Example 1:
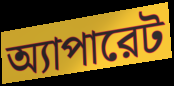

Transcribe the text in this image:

অ্যাপারেট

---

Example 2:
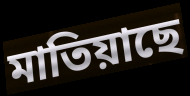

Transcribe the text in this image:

মাতিয়াছে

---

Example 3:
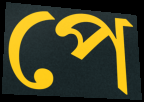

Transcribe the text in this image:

পে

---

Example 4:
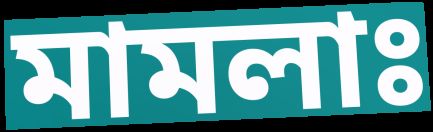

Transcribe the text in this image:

মামলাঃ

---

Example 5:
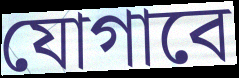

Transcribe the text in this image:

যোগাবে